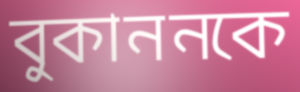
বুকাননকে